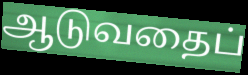
ஆடுவதைப்